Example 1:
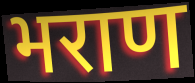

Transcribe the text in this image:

भराण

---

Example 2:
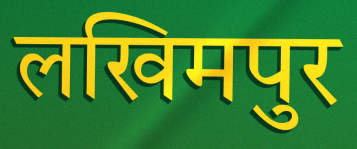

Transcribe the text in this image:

लखिमपुर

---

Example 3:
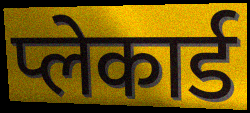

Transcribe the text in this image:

प्‍लेकार्ड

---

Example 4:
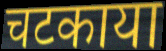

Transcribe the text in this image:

चटकाया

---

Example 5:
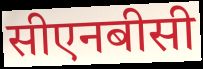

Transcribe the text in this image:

सीएनबीसी